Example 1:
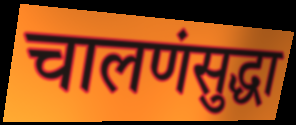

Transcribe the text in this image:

चालणंसुद्धा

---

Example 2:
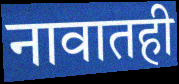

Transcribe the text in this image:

नावातही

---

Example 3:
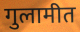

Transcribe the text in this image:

गुलामीत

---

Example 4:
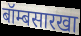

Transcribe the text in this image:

बॉम्बसारखा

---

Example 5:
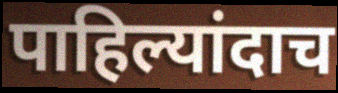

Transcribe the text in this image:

पाहिल्यांदाच